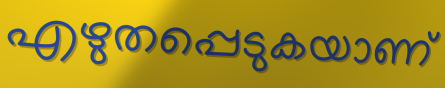
എഴുതപ്പെടുകയാണ്